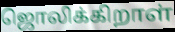
ஜொலிக்கிறாள்